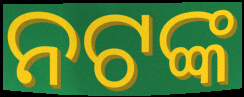
ନଟଙ୍କ